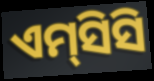
ଏମ୍‌ସିସି